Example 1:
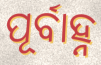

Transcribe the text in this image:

ପୂର୍ବାହ୍ନ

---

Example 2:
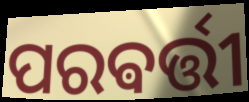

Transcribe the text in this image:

ପରଵର୍ତ୍ତୀ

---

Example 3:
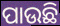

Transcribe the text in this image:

ପାଉଛି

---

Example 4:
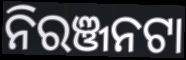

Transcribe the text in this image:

ନିରଞ୍ଜନଟା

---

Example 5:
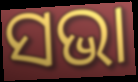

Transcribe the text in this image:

ସଭା